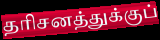
தரிசனத்துக்குப்